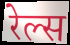
रेल्स